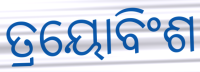
ତ୍ରୟୋବିଂଶ